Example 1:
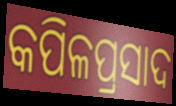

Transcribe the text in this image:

କପିଳପ୍ରସାଦ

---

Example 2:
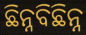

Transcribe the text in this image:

ଛିନ୍ନବିଛିନ୍ନ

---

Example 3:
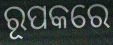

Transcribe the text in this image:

ରୂପକରେ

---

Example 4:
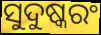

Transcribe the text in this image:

ସୁଦୁଷ୍କରଂ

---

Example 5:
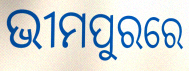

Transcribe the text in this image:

ଭୀମପୁରରେ